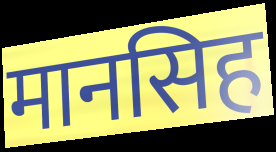
मानसिह